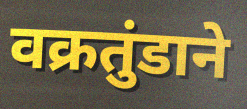
वक्रतुंडाने